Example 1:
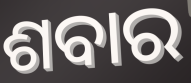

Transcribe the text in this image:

ଶବାର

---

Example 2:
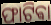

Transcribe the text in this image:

ଫାଟିଵା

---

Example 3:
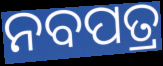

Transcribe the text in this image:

ନବପତ୍ର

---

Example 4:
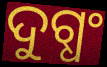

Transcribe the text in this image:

ଦୁଗ୍ଧଂ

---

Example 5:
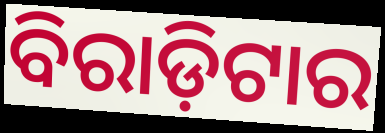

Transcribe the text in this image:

ବିରାଡ଼ିଟାର